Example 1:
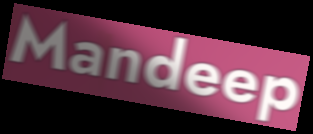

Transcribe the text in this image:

Mandeep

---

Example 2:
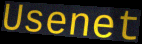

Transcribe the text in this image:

Usenet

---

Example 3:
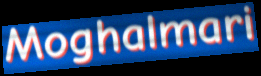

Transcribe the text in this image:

Moghalmari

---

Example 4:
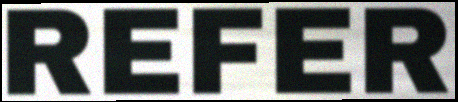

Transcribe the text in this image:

REFER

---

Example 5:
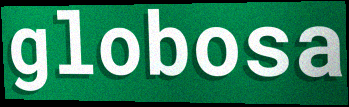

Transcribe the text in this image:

globosa